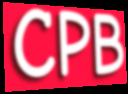
CPB